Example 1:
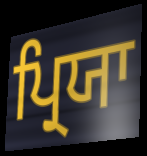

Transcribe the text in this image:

ਪ੍ਰਿਯਾ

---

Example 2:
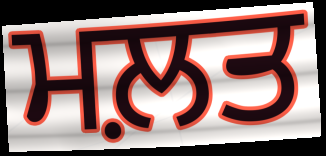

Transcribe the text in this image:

ਮਲ਼ਤ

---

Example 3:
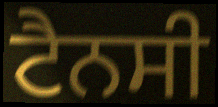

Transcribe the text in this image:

ਟੈਨਸੀ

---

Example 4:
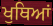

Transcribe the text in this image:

ਖੁਥਿਆਂ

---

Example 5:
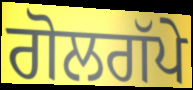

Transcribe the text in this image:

ਗੋਲਗੱਪੇ